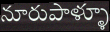
నూరుపాళ్ళూ